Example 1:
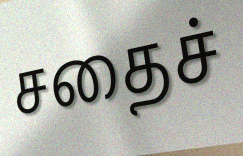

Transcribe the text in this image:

சதைச்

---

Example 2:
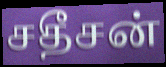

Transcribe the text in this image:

சதீசன்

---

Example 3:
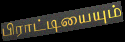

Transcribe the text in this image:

பிராட்டியையும்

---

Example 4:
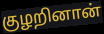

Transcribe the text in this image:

குழறினான்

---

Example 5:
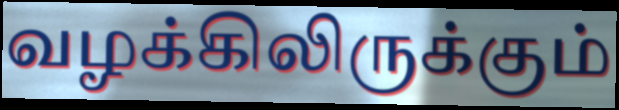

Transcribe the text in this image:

வழக்கிலிருக்கும்